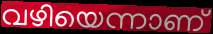
വഴിയെന്നാണ്